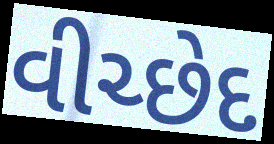
વીચ્છેદ